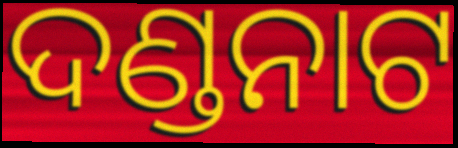
ଦଣ୍ଡନାଟ